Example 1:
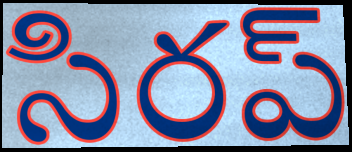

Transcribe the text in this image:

సిరప్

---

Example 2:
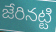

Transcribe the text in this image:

జేరినట్టి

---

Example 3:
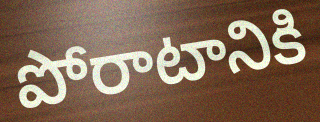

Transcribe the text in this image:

పోరాటానికి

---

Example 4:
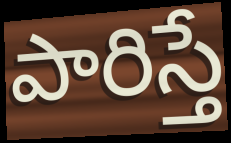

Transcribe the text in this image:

పారిస్తే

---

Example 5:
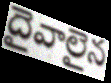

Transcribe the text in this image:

దైవాలైన